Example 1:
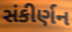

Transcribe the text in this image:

સંકીર્ણન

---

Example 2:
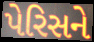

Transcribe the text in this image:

પેરિસને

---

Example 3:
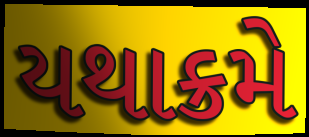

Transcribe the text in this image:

યથાક્રમે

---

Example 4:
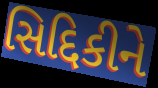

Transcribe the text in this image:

સિદ્દિકીને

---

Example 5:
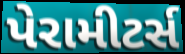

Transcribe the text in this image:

પેરામીટર્સ